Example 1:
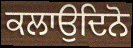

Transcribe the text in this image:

ਕਲਾਉਦਿਨੋ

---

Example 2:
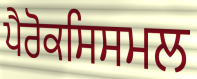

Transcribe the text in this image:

ਪੈਰੋਕਸਿਸਮਲ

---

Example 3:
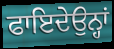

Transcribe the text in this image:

ਫਾਇਦੇਉਨ੍ਹਾਂ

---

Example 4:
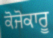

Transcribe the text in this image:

ਕੋਜੋਕਾਰੂ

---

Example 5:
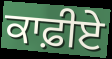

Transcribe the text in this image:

ਕਾਫ਼ੀਏ